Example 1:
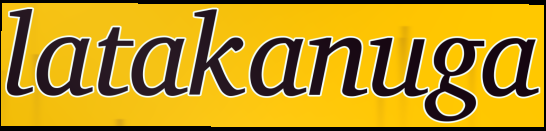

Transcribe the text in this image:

latakanuga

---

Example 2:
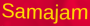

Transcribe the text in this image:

Samajam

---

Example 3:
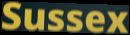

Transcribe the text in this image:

Sussex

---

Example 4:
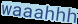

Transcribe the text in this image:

waaahhh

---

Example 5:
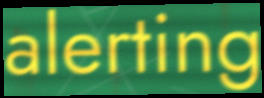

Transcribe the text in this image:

alerting